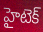
హైటెక్